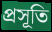
প্রসূতি